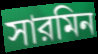
সারমিন